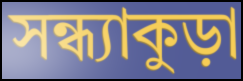
সন্ধ্যাকুড়া